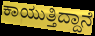
ಕಾಯುತ್ತಿದ್ದಾನೆ